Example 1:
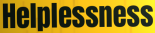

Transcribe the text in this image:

Helplessness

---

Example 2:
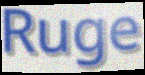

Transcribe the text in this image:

Ruge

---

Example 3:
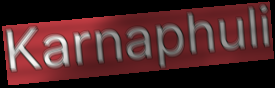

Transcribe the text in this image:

Karnaphuli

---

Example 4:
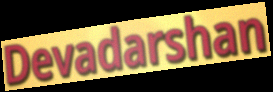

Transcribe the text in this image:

Devadarshan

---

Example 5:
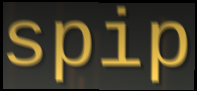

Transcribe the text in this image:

spip